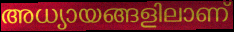
അധ്യായങ്ങളിലാണ്